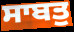
ਸਾਬਤੁ